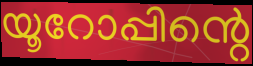
യൂറോപ്പിന്റെ